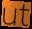
ut